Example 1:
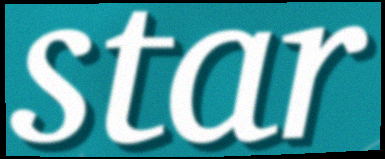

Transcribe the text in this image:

star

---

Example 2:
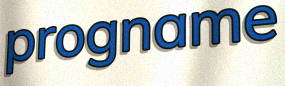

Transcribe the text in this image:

progname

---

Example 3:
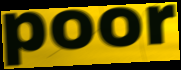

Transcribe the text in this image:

poor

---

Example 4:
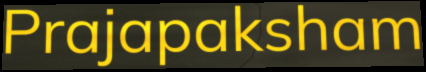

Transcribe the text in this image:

Prajapaksham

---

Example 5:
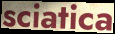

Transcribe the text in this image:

sciatica